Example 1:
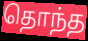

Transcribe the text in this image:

தொந்த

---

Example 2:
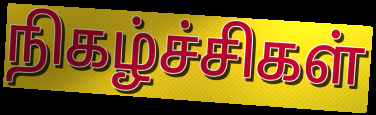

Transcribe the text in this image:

நிகழ்ச்சிகள்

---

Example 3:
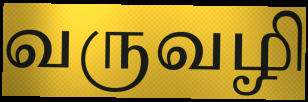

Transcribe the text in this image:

வருவழி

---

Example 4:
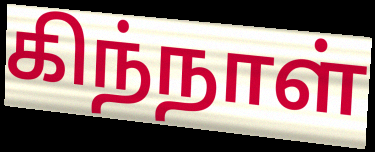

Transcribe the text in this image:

கிந்நாள்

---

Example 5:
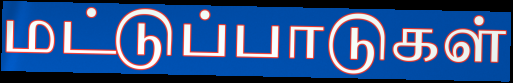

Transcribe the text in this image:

மட்டுப்பாடுகள்